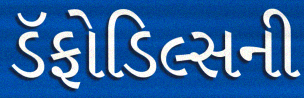
ડૅફોડિલ્સની